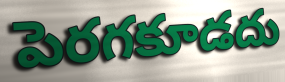
పెరగకూడదు